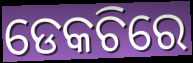
ଡେକଚିରେ